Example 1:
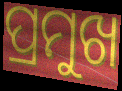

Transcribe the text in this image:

ପ୍ରମୁଖ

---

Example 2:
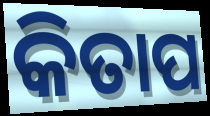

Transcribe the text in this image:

କିତାପ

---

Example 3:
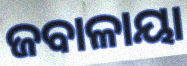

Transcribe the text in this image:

ଜବାଳାୟା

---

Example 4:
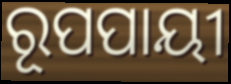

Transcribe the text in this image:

ରୂପପାୟୀ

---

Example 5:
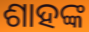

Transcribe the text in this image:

ଶାହଙ୍କ